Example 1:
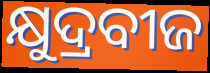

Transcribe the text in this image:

କ୍ଷୁଦ୍ରବୀଜ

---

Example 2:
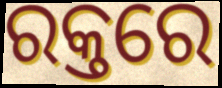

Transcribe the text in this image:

ରକ୍ତରେ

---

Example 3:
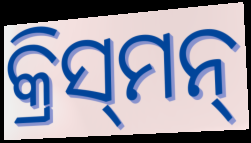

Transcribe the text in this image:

କ୍ରିସ୍‍ମନ୍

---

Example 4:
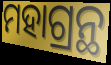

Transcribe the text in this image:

ମହାଗ୍ରନ୍ଥ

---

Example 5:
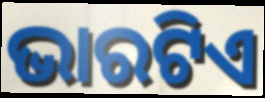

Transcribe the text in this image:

ଭାରଟିଏ